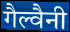
गैल्वैनी